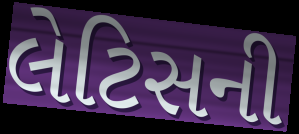
લેટિસની